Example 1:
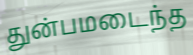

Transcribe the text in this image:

துன்பமடைந்த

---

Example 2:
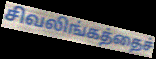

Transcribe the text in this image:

சிவலிங்கத்தைச்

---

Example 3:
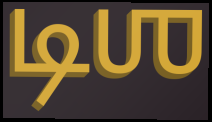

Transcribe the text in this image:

டிஶ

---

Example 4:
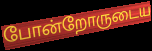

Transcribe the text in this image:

போன்றோருடைய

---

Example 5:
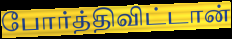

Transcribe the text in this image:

போர்த்திவிட்டான்